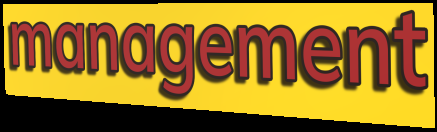
management